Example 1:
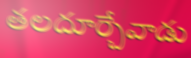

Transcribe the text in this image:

తలదూర్చేవాడు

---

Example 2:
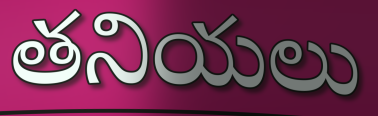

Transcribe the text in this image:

తనియలు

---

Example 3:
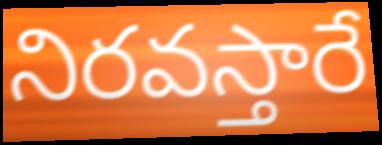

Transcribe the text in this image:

నిరవస్తారే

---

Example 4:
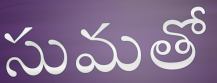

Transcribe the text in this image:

సుమతో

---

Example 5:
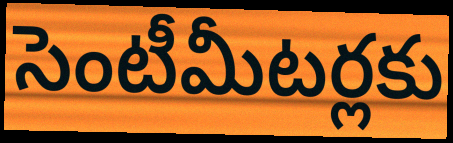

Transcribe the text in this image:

సెంటీమీటర్లకు